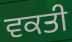
ਵਕਤੀ